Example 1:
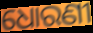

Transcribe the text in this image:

ଧୋରଣୀ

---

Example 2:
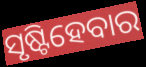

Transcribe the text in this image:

ସୃଷ୍ଟିହେବାର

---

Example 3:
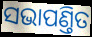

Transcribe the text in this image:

ସଭାପଣ୍ତିତ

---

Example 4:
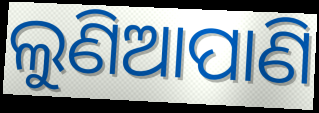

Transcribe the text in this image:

ଲୁଣିଆପାଣି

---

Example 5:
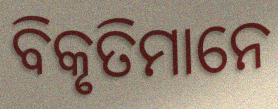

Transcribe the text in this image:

ବିକୃତିମାନେ